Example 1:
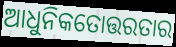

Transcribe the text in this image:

ଆଧୁନିକତୋତ୍ତରତାର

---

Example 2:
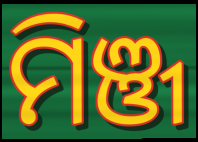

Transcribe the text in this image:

ମିଞ୍ଜ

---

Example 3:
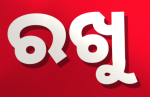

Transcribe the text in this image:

ରଖୁ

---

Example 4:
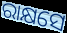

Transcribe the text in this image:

ରାକ୍ଷସେ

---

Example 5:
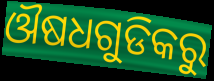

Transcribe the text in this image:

ଔଷଧଗୁଡିକରୁ